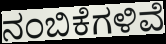
ನಂಬಿಕೆಗಳಿವೆ